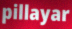
pillayar